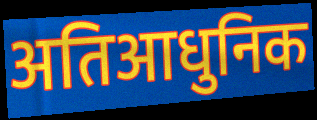
अतिआधुनिक